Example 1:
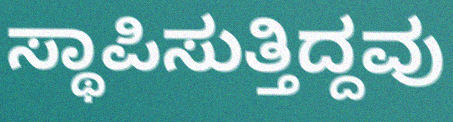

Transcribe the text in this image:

ಸ್ಥಾಪಿಸುತ್ತಿದ್ದವು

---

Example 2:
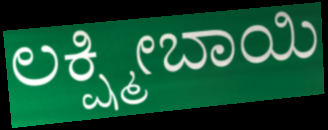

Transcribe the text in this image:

ಲಕ್ಷ್ಮೀಬಾಯಿ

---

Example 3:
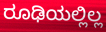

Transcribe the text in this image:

ರೂಢಿಯಲ್ಲಿಲ್ಲ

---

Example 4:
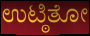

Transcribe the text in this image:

ಉಟ್ಠಿತೋ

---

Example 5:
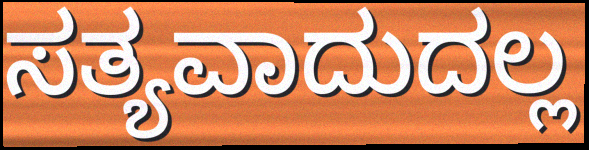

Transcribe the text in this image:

ಸತ್ಯವಾದುದಲ್ಲ